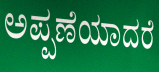
ಅಪ್ಪಣೆಯಾದರೆ